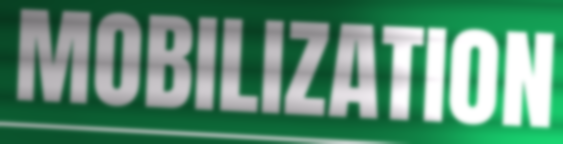
MOBILIZATION